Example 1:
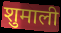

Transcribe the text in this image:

शुमाली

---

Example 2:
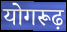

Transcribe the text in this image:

योगरूढ़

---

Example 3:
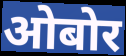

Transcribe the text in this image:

ओबोर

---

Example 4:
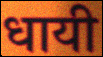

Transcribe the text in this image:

धायी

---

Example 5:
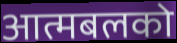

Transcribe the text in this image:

आत्मबलको